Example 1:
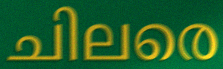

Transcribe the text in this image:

ചിലരെ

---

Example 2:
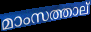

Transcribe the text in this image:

മാംസത്താല്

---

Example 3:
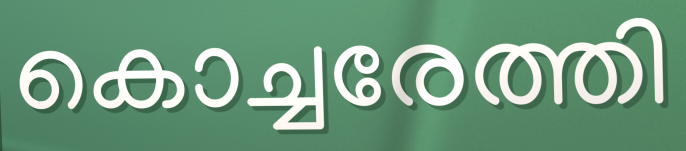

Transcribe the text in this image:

കൊച്ചരേത്തി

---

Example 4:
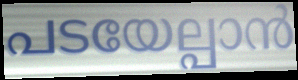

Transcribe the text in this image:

പടയേല്പാൻ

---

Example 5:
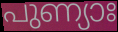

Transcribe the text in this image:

പുണ്യാഃ